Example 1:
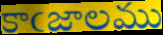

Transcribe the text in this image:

కాఁజాలము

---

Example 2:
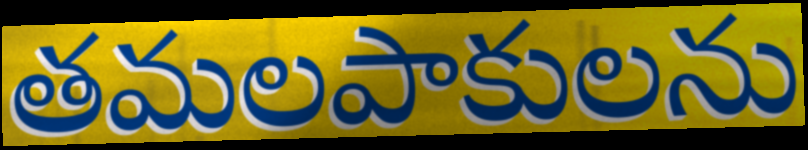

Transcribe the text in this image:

తమలపాకులను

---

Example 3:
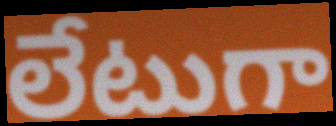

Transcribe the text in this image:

లేటుగా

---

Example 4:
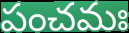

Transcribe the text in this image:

పంచమః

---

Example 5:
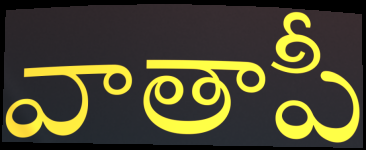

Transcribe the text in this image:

వాతాపీ